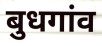
बुधगांव